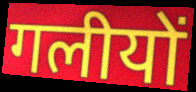
गलीयों